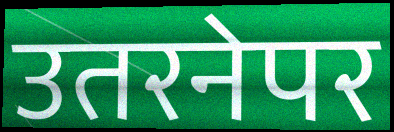
उतरनेपर